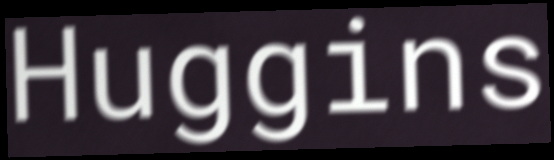
Huggins